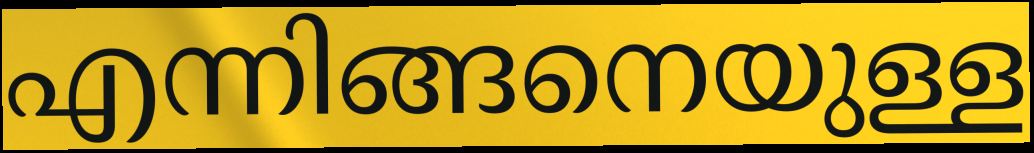
എന്നിങ്ങനെയുള്ള